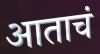
आताचं